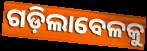
ଗଡ଼ିଲାବେଳକୁ